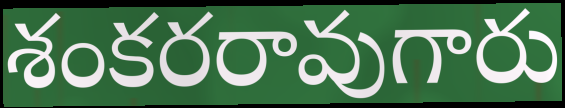
శంకరరావుగారు